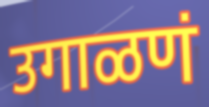
उगाळणं